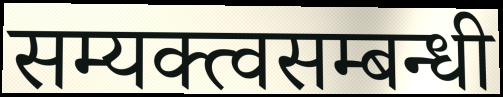
सम्यक्त्वसम्बन्धी